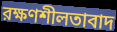
রক্ষণশীলতাবাদ